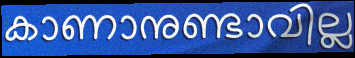
കാണാനുണ്ടാവില്ല